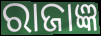
ରାଜାଜ୍ଞ